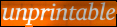
unprintable